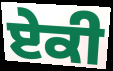
ਏਕੀ